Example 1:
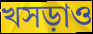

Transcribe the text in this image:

খসড়াও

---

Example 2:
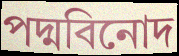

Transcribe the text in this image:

পদ্মবিনোদ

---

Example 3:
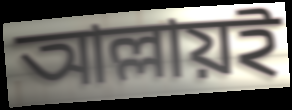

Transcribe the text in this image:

আল্লায়ই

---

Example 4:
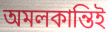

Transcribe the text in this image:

অমলকান্তিই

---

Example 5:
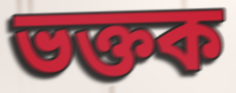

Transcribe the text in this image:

ভক্তক